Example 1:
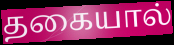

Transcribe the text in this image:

தகையால்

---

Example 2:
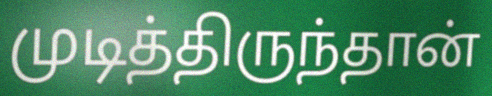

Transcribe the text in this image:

முடித்திருந்தான்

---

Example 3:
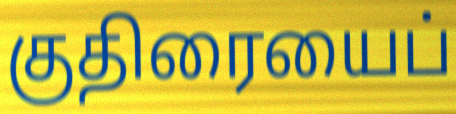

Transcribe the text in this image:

குதிரையைப்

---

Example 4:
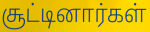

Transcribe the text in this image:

சூட்டினார்கள்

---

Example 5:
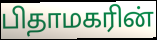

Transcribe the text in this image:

பிதாமகரின்